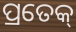
ପ୍ରତେକ୍